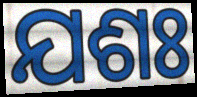
ଯଶଃ